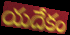
యదేకం